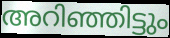
അറിഞ്ഞിട്ടും